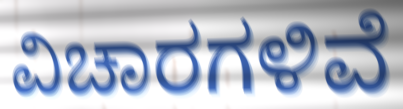
ವಿಚಾರಗಳಿವೆ